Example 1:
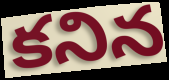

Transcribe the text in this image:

కనిన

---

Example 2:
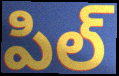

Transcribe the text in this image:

పిల్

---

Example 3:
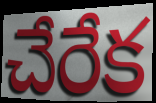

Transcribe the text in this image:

చేరేక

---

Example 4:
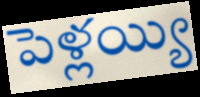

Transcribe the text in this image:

పెళ్లయ్యి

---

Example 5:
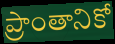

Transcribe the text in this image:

ప్రాంతానికో